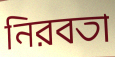
নিরবতা